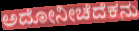
ಅದೋನೀಚೆದೆಕನು